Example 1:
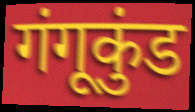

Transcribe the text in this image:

गंगूकुंड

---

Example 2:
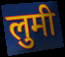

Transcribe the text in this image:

लुमी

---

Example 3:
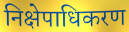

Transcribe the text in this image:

निक्षेपाधिकरण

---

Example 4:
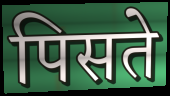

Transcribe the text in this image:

पिसते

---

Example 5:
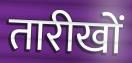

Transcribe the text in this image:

तारीखों